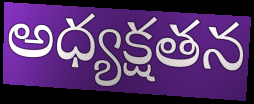
అధ్యక్షతన